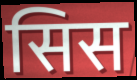
सिस